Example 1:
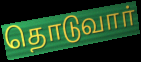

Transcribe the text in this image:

தொடுவார்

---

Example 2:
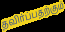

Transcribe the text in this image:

தவிர்ப்பதற்கும்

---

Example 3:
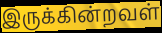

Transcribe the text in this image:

இருக்கின்றவள்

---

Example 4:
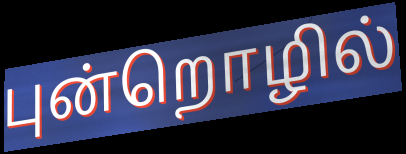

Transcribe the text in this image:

புன்றொழில்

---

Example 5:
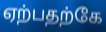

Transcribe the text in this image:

ஏற்பதற்கே